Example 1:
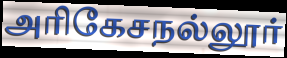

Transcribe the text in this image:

அரிகேசநல்லூர்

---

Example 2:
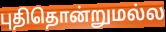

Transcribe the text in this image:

புதிதொன்றுமல்ல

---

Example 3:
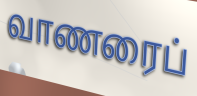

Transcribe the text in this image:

வாணரைப்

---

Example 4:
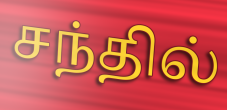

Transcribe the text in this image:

சந்தில்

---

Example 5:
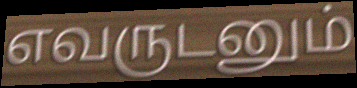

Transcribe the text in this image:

எவருடனும்